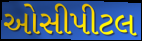
ઓસીપીટલ